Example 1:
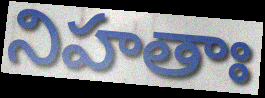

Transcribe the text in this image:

నిహతాః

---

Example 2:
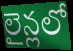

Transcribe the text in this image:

లైన్లలో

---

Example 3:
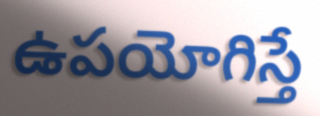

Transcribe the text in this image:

ఉపయోగిస్తే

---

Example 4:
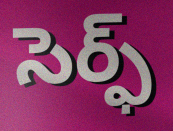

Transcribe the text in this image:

సెర్ఫ్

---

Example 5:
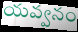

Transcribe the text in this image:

యవ్వనం